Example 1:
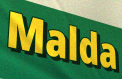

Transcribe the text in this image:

Malda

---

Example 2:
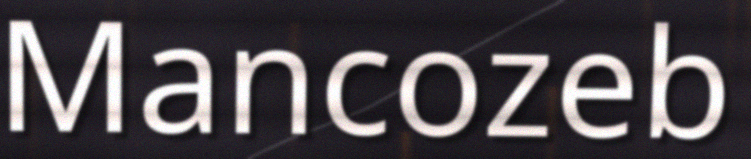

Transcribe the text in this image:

Mancozeb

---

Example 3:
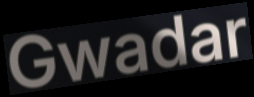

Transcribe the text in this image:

Gwadar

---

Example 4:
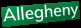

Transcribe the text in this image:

Allegheny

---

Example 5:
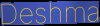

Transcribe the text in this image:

Deshma